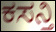
ಕಸನ್ತಿ